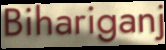
Bihariganj